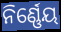
ନିର୍ଣ୍ଣେୟ